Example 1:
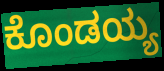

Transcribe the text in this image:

ಕೊಂಡಯ್ಯ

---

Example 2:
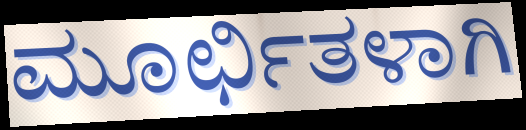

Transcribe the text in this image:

ಮೂರ್ಛಿತಳಾಗಿ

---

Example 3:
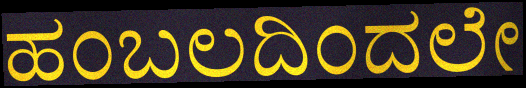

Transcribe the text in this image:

ಹಂಬಲದಿಂದಲೇ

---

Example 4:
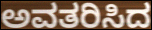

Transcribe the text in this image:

ಅವತರಿಸಿದ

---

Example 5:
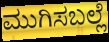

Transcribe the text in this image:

ಮುಗಿಸಬಲ್ಲೆ